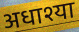
अधाश्या